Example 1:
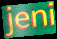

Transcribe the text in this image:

jeni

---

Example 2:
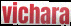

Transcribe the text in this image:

vichara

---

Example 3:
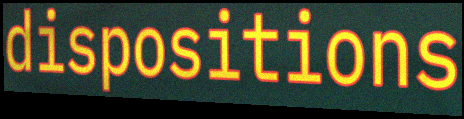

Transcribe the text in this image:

dispositions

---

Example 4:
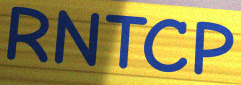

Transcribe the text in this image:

RNTCP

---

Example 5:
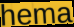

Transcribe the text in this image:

hema